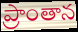
ప్రాంతాన